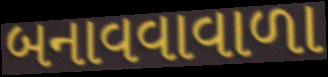
બનાવવાવાળા